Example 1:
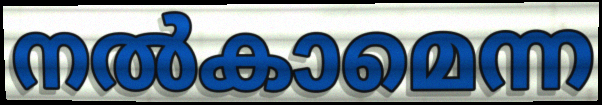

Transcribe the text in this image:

നൽകാമെന്ന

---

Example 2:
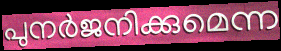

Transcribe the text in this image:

പുനർജനിക്കുമെന്ന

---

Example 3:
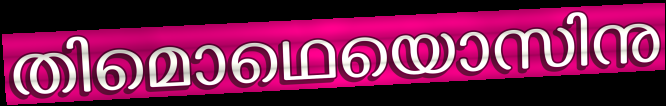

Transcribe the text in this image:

തിമൊഥെയൊസിനു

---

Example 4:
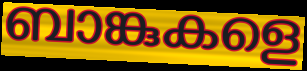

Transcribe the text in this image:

ബാങ്കുകളെ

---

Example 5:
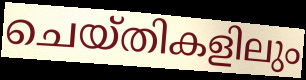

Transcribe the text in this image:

ചെയ്തികളിലും